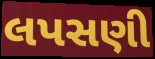
લપસણી